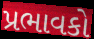
પ્રભાવકો